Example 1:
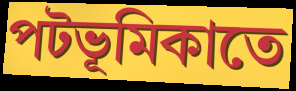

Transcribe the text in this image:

পটভূমিকাতে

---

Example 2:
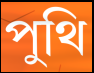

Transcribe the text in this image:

পুথি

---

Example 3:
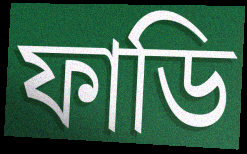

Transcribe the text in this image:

ফাডি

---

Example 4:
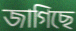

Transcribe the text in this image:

জাগিছে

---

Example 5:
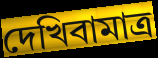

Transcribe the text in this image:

দেখিবামাত্র